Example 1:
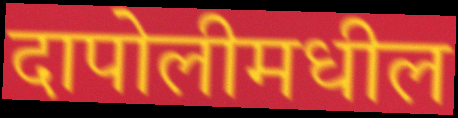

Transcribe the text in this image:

दापोलीमधील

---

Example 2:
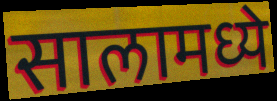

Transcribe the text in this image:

सालामध्ये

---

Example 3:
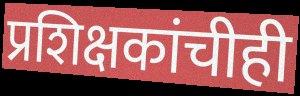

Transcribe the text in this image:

प्रशिक्षकांचीही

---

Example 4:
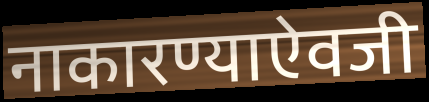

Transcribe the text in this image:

नाकारण्याऐवजी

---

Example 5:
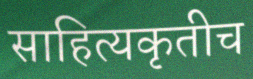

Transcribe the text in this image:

साहित्यकृतीच